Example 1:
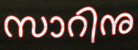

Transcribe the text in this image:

സാറിനു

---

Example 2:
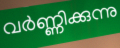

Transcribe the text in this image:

വർണ്ണിക്കുന്നു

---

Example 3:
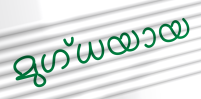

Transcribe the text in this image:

മുഗ്ധയായ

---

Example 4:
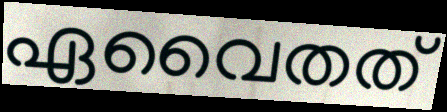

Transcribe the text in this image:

ഏവൈതത്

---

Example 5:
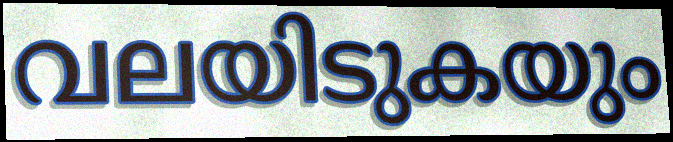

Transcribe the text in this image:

വലയിടുകയും